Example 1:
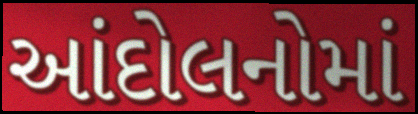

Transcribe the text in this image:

આંદોલનોમાં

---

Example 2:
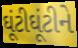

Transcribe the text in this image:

ઘૂંટીઘૂંટીને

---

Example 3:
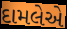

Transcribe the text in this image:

દામલેએ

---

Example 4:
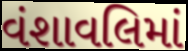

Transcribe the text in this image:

વંશાવલિમાં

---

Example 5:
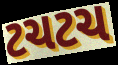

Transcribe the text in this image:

ટચટચ